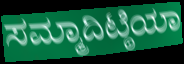
ಸಮ್ಮಾದಿಟ್ಠಿಯಾ